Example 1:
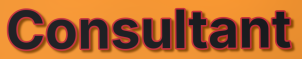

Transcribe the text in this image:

Consultant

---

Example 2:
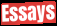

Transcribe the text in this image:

Essays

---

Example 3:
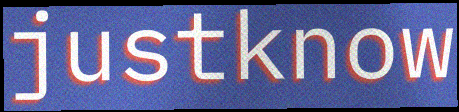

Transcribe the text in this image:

justknow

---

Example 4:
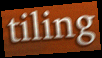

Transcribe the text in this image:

tiling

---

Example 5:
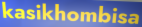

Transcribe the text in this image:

kasikhombisa